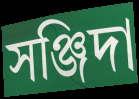
সঞ্জিদা